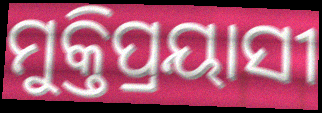
ମୁକ୍ତିପ୍ରୟାସୀ